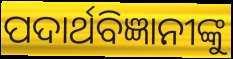
ପଦାର୍ଥବିଜ୍ଞାନୀଙ୍କୁ